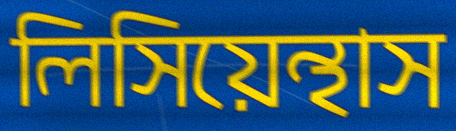
লিসিয়েন্থাস